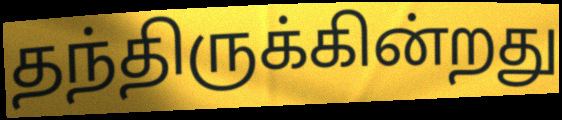
தந்திருக்கின்றது